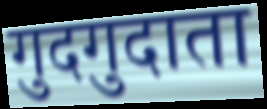
गुदगुदाता